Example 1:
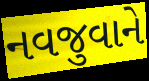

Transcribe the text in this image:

નવજુવાને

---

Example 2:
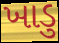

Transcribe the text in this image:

ખાડુ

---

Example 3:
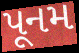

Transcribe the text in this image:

પૂનમ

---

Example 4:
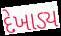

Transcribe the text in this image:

દેખાડ્ય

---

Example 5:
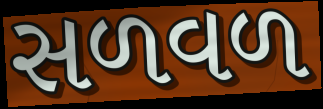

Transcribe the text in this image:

સળવળ